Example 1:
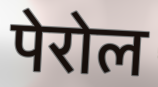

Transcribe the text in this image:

पेरोल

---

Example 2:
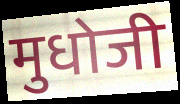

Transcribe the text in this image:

मुधोजी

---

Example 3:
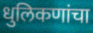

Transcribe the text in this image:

धुलिकणांचा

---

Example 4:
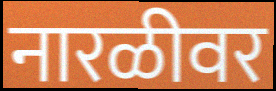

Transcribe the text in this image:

नारळीवर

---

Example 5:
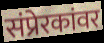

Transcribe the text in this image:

संप्रेरकांवर